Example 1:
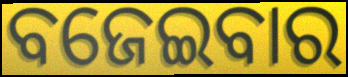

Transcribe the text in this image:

ବଜେଇବାର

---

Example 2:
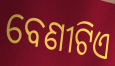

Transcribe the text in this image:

ବେଣୀଟିଏ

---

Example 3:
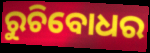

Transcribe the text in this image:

ରୁଚିବୋଧର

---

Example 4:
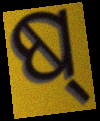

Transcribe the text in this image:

ଷ୍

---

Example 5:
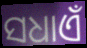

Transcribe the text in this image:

ସଧାଏଁ